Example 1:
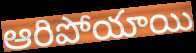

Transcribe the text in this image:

ఆరిపోయాయి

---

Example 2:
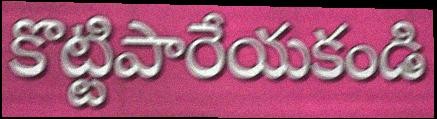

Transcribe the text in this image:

కొట్టిపారేయకండి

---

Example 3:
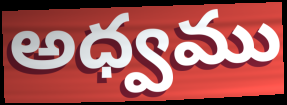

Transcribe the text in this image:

అధ్వము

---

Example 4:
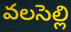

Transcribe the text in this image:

వలసెల్లి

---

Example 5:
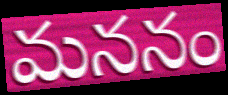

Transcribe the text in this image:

మననం